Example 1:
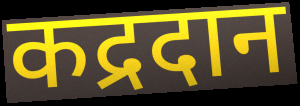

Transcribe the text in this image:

कद्रदान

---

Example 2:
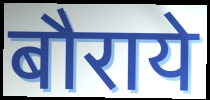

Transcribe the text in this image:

बौराये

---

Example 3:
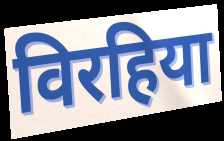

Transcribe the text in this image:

विरहिया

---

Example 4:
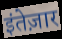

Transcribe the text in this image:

इंतेज़ार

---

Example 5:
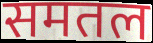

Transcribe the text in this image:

समतल